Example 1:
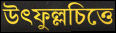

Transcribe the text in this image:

উৎফুল্লচিত্তে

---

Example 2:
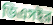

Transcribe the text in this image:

ডিএসইর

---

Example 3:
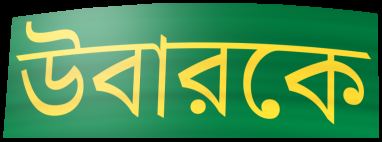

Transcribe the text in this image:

উবারকে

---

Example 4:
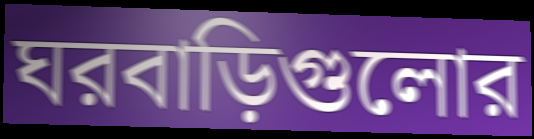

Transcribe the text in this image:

ঘরবাড়িগুলোর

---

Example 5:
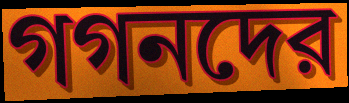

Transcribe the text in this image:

গগনদের